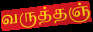
வருத்தஞ்